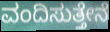
ವಂದಿಸುತ್ತೇನೆ